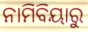
ନାମିବିୟାରୁ